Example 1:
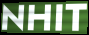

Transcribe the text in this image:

NHIT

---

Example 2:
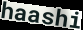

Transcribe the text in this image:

haashi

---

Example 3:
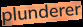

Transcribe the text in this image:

plunderer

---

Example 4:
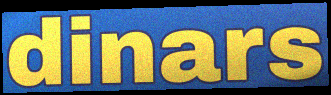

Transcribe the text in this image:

dinars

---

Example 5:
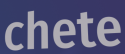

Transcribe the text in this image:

chete